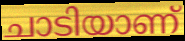
ചാടിയാണ്